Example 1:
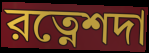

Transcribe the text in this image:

রত্নেশদা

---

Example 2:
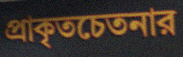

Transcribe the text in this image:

প্রাকৃতচেতনার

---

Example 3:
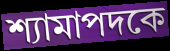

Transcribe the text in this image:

শ্যামাপদকে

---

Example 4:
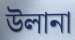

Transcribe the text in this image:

উলানা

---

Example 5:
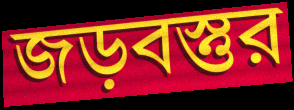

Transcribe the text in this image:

জড়বস্তুর